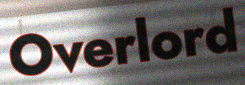
Overlord